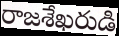
రాజశేఖరుడి